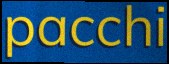
pacchi